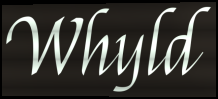
Whyld